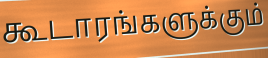
கூடாரங்களுக்கும்